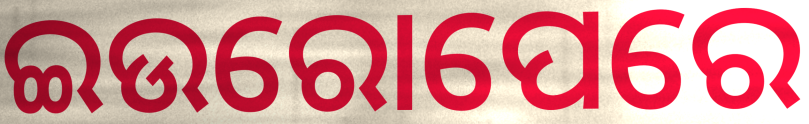
ଇଉରୋପେରେ